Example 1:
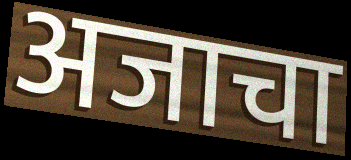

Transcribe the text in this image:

अजाचा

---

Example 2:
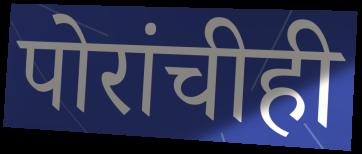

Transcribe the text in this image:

पोरांचीही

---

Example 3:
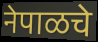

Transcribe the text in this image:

नेपाळचे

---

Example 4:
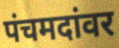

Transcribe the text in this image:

पंचमदांवर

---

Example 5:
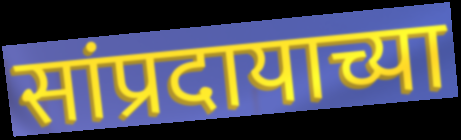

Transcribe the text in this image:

सांप्रदायाच्या